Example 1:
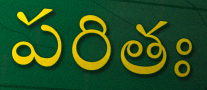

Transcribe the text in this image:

పరితః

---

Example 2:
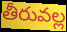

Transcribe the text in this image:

తీరువల్ల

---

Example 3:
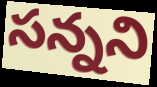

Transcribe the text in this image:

సన్నని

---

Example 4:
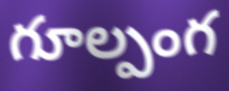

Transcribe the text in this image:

గూల్పంగ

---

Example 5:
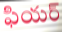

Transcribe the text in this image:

ఫియర్